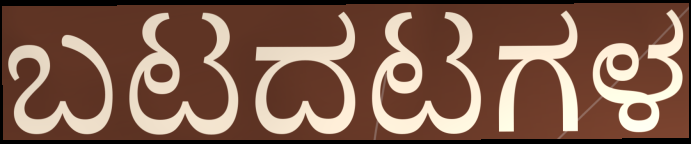
ಬಟದಟಗಳ